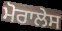
ਮੋਰਾਲੇਸ